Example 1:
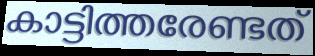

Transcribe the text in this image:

കാട്ടിത്തരേണ്ടത്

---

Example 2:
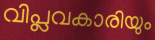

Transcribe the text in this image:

വിപ്ലവകാരിയും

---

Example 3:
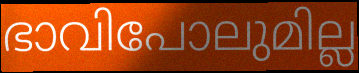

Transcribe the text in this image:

ഭാവിപോലുമില്ല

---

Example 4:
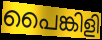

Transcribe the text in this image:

പൈങ്കിളി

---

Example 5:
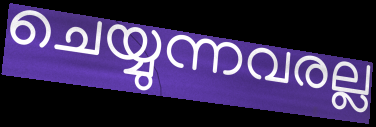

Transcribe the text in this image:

ചെയ്യുന്നവരല്ല